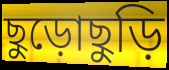
ছুড়োছুড়ি